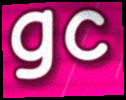
gc